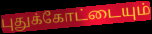
புதுக்கோட்டையும்